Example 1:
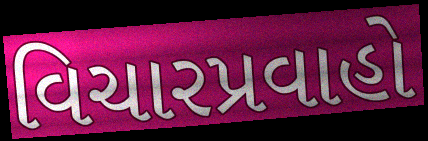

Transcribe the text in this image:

વિચારપ્રવાહો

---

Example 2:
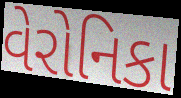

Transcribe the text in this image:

વેરોનિકા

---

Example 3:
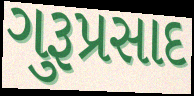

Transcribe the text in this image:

ગુરૂપ્રસાદ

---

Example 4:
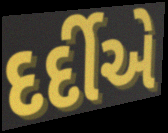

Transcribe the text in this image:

દર્દીએ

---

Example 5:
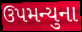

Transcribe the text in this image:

ઉપમન્યુના